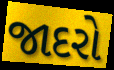
જાદરો